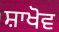
ਸ਼ਾਖੋਵ